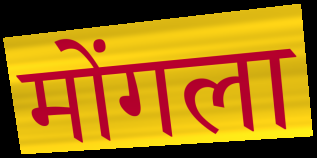
मोंगला